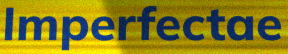
Imperfectae